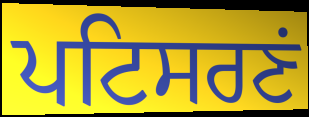
ਪਟਿਸਰਣਂ